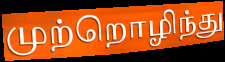
முற்றொழிந்து